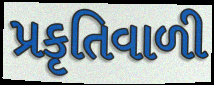
પ્રકૃતિવાળી